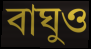
বাঘুও